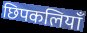
छिपकलियाँ